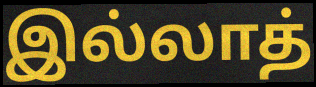
இல்லாத்